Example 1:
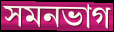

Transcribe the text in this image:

সমনভাগ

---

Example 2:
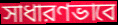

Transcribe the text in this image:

সাধারণভাবে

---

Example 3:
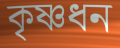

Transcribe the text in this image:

কৃষ্ণধন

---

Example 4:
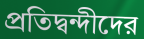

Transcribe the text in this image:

প্রতিদ্বন্দীদের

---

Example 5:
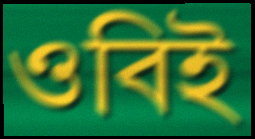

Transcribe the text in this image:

ওবিই